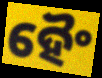
ହୈଂ